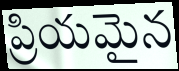
ప్రియమైన